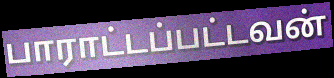
பாராட்டப்பட்டவன்